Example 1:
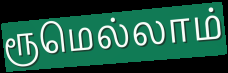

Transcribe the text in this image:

ரூமெல்லாம்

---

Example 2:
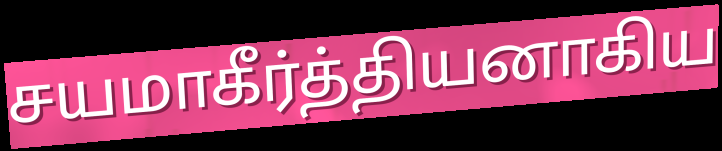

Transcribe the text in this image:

சயமாகீர்த்தியனாகிய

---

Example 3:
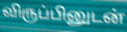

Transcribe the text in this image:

விருப்பினுடன்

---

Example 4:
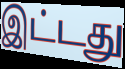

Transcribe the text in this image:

இட்டது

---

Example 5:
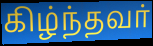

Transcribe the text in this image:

கிழ்ந்தவர்